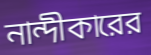
নান্দীকারের